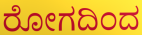
ರೋಗದಿಂದ